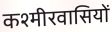
कश्मीरवासियों